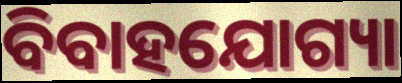
ବିବାହଯୋଗ୍ୟା